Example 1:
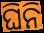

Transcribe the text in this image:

ଘିନି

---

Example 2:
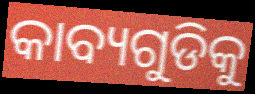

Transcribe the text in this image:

କାବ୍ୟଗୁଡିକୁ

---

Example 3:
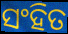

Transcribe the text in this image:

ସଂହିତ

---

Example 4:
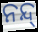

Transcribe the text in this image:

ନନ୍ଦ୍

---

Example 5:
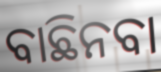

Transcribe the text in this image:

ବାଛିନବା